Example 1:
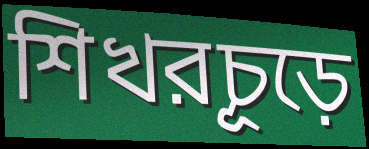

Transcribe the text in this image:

শিখরচূড়ে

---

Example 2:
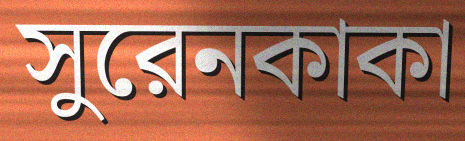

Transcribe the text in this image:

সুরেনকাকা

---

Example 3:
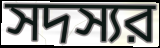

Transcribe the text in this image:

সদস্যর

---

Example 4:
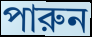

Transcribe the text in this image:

পারুন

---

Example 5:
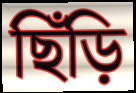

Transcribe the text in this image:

ছিঁড়ি